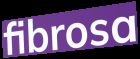
fibrosa